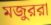
মজুররা